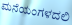
ಮನೆಯಂಗಳದಲಿ